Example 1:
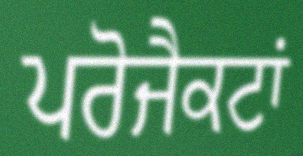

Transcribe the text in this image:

ਪਰੋਜੈਕਟਾਂ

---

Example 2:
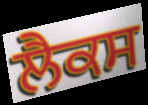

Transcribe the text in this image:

ਲੈਕਸ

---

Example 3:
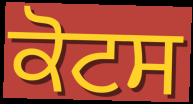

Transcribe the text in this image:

ਕੋਟਸ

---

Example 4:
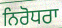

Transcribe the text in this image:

ਨਿਰੋਧਰਾ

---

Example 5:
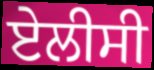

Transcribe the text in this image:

ਏਲੀਸੀ